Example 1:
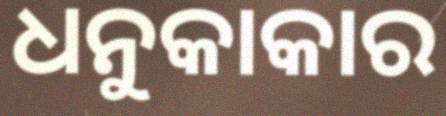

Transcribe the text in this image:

ଧନୁକାକାର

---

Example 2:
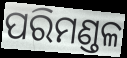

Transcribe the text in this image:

ପରିମଣ୍ଡଳ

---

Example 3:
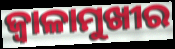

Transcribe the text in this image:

ଜ୍ୱାଳାମୁଖୀର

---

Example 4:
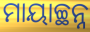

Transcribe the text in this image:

ମାୟାଚ୍ଛନ୍ନ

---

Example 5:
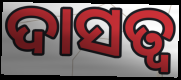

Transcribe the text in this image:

ଦାସତ୍ଵ